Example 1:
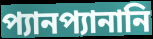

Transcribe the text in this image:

প্যানপ্যানানি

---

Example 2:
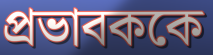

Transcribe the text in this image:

প্রভাবককে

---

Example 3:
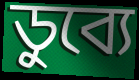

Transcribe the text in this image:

ডুব্যে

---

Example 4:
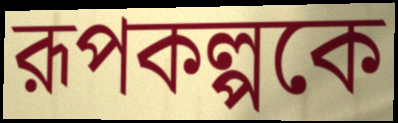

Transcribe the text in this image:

রূপকল্পকে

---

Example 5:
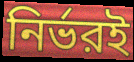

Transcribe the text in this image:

নির্ভরই